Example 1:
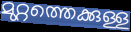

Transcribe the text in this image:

മുറ്റത്തെക്കുള്ള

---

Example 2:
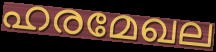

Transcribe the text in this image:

ഹരമേഖല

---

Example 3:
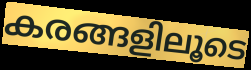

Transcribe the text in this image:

കരങ്ങളിലൂടെ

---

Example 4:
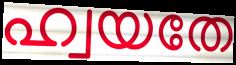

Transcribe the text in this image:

ഹ്വയതേ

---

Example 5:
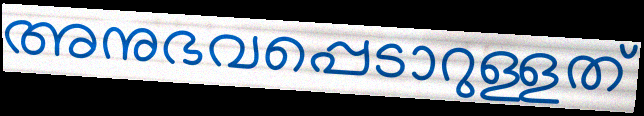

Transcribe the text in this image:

അനുഭവപ്പെടാറുള്ളത്